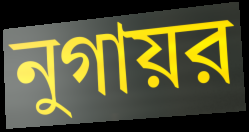
নুগায়র